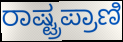
ರಾಷ್ಟ್ರಪ್ರಾಣಿ